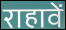
राहावें